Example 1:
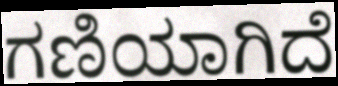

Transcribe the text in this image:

ಗಣಿಯಾಗಿದೆ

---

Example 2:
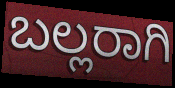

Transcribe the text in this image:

ಬಲ್ಲರಾಗಿ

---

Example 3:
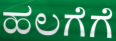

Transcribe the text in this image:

ಹಲಗೆಗೆ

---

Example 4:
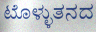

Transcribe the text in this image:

ಟೊಳ್ಳುತನದ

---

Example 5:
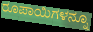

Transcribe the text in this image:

ರೂಪಾಯಿಗಳನ್ನೂ